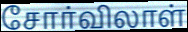
சோர்விலாள்